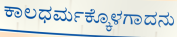
ಕಾಲಧರ್ಮಕ್ಕೊಳಗಾದನು